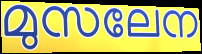
മുസലേന